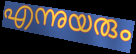
എന്നുയരും